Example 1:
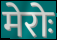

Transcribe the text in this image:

मेरोः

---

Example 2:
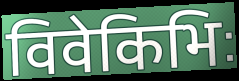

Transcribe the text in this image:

विवेकिभिः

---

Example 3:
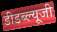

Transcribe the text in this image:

डीडब्ल्यूजी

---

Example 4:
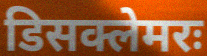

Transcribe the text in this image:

डिसक्लेमरः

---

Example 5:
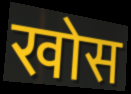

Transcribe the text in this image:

खोस